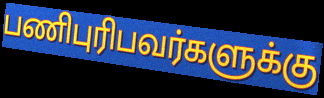
பணிபுரிபவர்களுக்கு